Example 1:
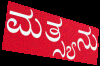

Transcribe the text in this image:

ಮತ್ಸ್ಯನು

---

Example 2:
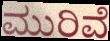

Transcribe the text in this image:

ಮುರಿವೆ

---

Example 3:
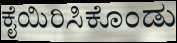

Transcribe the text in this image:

ಕೈಯಿರಿಸಿಕೊಂಡು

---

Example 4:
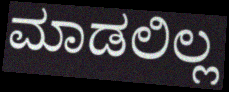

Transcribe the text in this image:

ಮಾಡಲಿಲ್ಲ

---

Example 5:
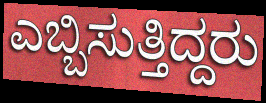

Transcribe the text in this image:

ಎಬ್ಬಿಸುತ್ತಿದ್ದರು